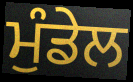
ਮੁੰਡੇਲ